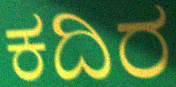
ಕದಿರ